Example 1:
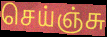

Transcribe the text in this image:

செய்ஞ்சு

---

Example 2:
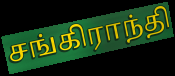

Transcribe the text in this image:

சங்கிராந்தி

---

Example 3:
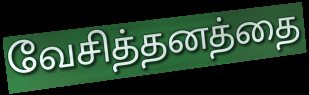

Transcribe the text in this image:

வேசித்தனத்தை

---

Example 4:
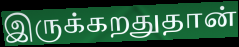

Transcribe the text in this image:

இருக்கறதுதான்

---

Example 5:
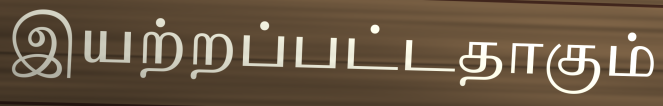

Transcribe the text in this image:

இயற்றப்பட்டதாகும்